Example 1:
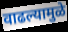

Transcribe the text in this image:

वाढल्यामुळे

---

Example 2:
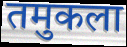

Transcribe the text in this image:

तमुकला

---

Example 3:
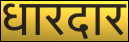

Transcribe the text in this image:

धारदार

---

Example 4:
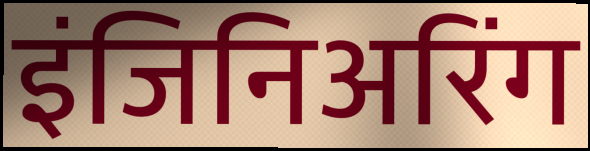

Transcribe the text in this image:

इंजिनिअरिंग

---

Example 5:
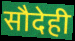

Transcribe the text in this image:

सौदेही